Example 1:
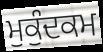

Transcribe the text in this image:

ਮੁਕੁੰਦਕਮ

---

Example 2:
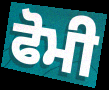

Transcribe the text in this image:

ਫੋਮੀ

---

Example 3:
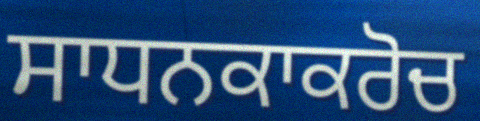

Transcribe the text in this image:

ਸਾਧਨਕਾਕਰੋਚ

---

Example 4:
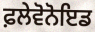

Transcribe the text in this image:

ਫ਼ਲੇਵੋਨੋਇਡ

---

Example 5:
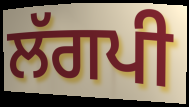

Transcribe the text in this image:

ਲੱਗਪੀ